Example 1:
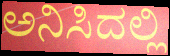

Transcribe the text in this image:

ಅನಿಸಿದಲ್ಲಿ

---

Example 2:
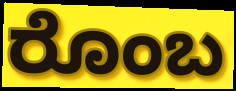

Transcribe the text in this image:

ರೊಂಬ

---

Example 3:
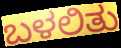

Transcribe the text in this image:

ಬಳಲಿತು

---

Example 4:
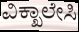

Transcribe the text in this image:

ವಿಕ್ಖಾಲೇಸಿ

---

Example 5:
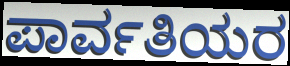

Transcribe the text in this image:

ಪಾರ್ವತಿಯರ